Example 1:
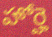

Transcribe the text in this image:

హోర్హె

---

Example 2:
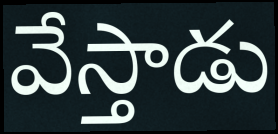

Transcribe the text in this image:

వేస్తాడు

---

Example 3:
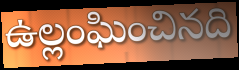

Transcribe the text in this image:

ఉల్లంఘించినది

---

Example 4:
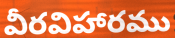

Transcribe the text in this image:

వీరవిహారము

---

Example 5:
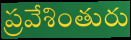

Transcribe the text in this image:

ప్రవేశింతురు